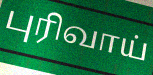
புரிவாய்